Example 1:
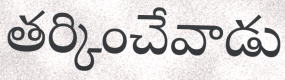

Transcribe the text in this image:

తర్కించేవాడు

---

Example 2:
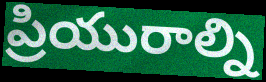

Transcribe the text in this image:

ప్రియురాల్ని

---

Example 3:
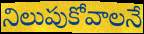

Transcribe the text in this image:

నిలుపుకోవాలనే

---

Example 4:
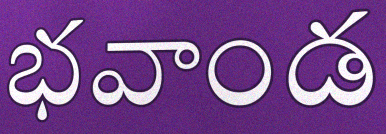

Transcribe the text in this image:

భవాండ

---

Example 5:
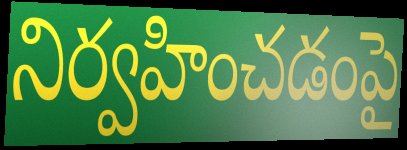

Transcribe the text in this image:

నిర్వహించడంపై